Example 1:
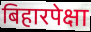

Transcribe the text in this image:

बिहारपेक्षा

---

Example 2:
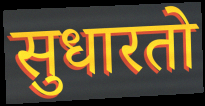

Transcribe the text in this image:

सुधारतो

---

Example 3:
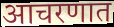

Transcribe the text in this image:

आचरणात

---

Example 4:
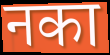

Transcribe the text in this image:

नका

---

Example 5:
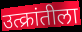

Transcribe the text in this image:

उत्क्रांतीला